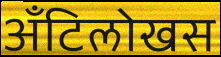
अँटिलोखस